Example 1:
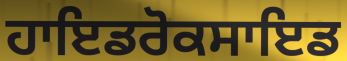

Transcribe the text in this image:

ਹਾਇਡਰੋਕਸਾਇਡ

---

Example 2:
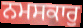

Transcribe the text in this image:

ਨਮਸਕਾਰੁ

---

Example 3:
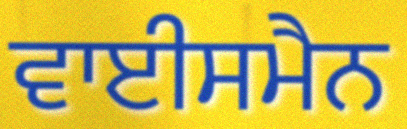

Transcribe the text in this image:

ਵਾਈਸਮੈਨ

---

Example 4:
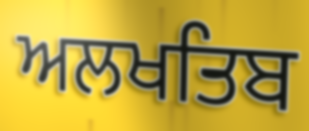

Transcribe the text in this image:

ਅਲਖਤਿਬ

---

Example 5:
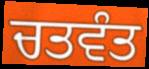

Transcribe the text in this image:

ਚਤਵੰਤ